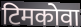
टिमकोवा